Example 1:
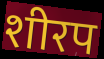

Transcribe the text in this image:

शीरप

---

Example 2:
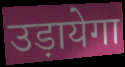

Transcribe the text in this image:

उड़ायेगा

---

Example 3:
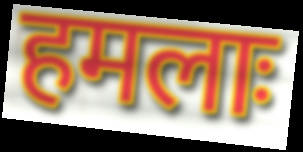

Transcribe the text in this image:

हमलाः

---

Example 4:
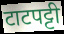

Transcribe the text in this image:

टाटपट्टी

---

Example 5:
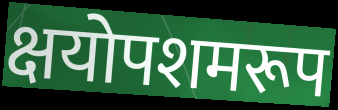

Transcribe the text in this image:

क्षयोपशमरूप